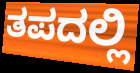
ತಪದಲ್ಲಿ